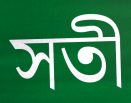
সতী